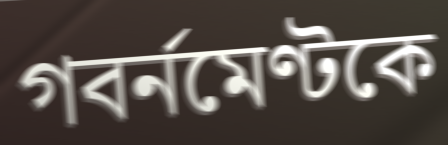
গবর্নমেণ্টকে